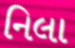
નિલા